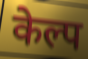
केल्प